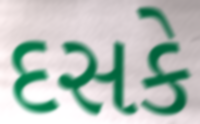
દસકે